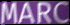
MARC